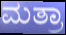
ಮತ್ರಾ